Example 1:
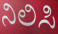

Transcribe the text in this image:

ನಿಲಿಸಿ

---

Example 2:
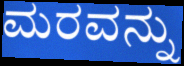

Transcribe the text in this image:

ಮರವನ್ನು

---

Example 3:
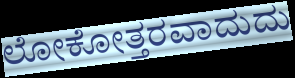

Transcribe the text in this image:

ಲೋಕೋತ್ತರವಾದುದು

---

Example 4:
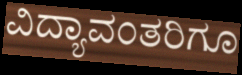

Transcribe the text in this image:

ವಿದ್ಯಾವಂತರಿಗೂ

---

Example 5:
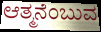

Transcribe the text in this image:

ಆತ್ಮನೆಂಬುವ